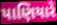
પાણિયારે